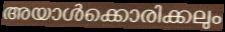
അയാൾക്കൊരിക്കലും